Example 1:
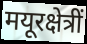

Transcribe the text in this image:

मयूरक्षेत्रीं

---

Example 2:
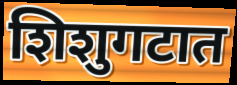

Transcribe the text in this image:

शिशुगटात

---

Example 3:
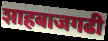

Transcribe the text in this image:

शाहबाजगढी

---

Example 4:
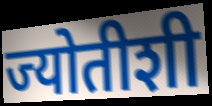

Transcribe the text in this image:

ज्योतीशी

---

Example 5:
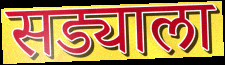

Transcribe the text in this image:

सड्याला